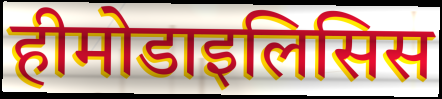
हीमोडाइलिसिस